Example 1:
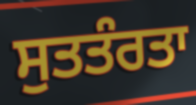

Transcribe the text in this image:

ਸੁਤਤੰਰਤਾ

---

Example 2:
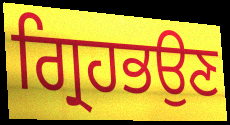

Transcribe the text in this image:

ਗ੍ਰਿਹਭਉਣ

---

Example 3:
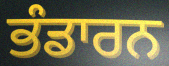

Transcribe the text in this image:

ਭੰਡਾਰਨ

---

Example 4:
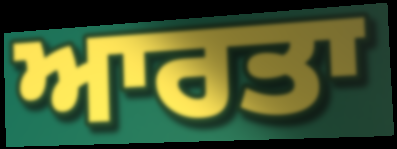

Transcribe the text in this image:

ਆਰਤਾ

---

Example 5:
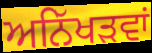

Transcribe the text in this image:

ਅਨਿੱਖੜਵਾਂ